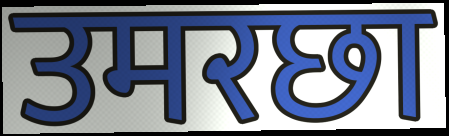
उमरछा